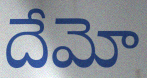
దేమో